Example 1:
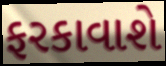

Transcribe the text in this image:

ફરકાવાશે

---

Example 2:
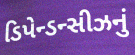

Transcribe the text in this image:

ડિપેન્ડન્સીઝનું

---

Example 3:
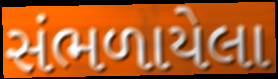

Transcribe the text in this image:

સંભળાયેલા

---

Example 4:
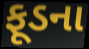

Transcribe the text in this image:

ફૂડના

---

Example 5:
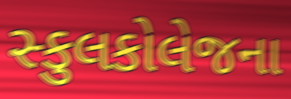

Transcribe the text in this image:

સ્કુલકોલેજના